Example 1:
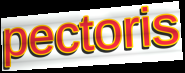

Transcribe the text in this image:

pectoris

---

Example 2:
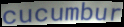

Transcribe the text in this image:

cucumbur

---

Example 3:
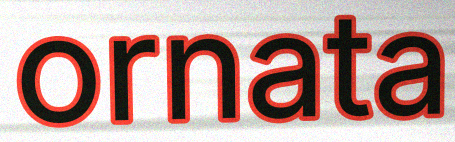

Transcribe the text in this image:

ornata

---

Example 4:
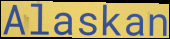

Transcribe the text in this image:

Alaskan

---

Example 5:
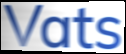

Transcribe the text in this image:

Vats